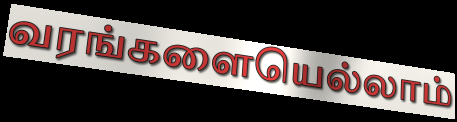
வரங்களையெல்லாம்